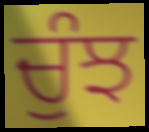
ਚੁੰਝ